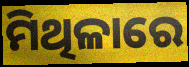
ମିଥିଳାରେ